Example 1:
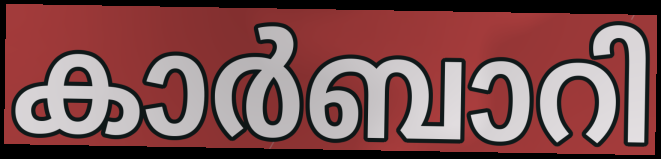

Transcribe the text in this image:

കാർബാറി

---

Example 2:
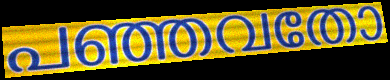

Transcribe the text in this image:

പഞ്ഞവതോ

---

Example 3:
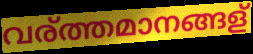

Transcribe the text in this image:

വര്ത്തമാനങ്ങള്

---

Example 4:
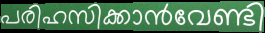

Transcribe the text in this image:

പരിഹസിക്കാൻവേണ്ടി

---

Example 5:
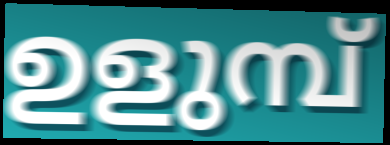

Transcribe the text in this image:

ഉളുമ്പ്